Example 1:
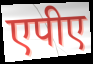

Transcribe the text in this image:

एपीए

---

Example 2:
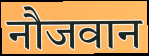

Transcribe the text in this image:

नौजवान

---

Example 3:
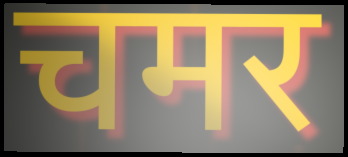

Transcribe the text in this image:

चमर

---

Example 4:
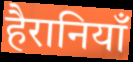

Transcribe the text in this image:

हैरानियाँ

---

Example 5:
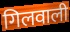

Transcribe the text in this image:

गिलवाली